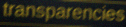
transparencies